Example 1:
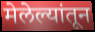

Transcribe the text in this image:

मेलेल्यांतून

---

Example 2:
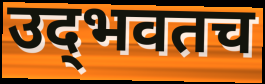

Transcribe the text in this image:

उद्‌भवतच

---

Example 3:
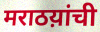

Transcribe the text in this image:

मराठय़ांची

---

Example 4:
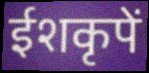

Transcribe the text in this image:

ईशकृपें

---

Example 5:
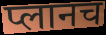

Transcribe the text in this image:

प्लानच